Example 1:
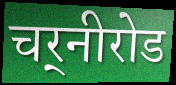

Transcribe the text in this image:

चर्नीरोड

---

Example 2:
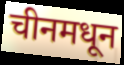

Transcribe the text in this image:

चीनमधून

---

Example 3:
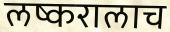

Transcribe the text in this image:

लष्करालाच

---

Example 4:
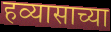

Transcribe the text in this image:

हव्यासाच्या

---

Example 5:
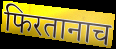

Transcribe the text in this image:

फिरतानाच